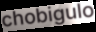
chobigulo